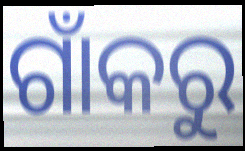
ଗାଁକରୁ